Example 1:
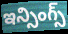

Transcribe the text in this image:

ఇన్సింగ్స్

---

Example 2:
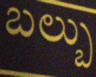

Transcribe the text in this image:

బల్బు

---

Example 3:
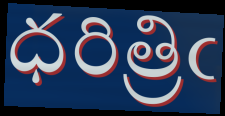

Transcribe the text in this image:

ధరిత్రిఁ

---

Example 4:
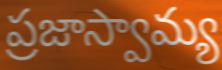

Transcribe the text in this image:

ప్రజాస్వామ్య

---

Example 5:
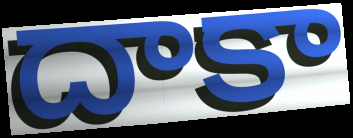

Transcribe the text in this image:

దాకా